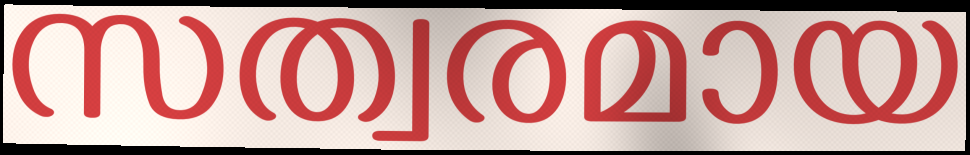
സത്വരമായ